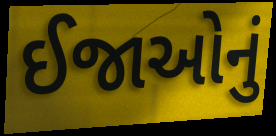
ઈજાઓનું